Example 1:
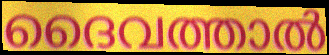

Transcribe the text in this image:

ദൈവത്താൽ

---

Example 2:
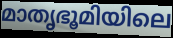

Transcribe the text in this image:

മാതൃഭൂമിയിലെ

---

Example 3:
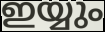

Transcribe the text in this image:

ഇയ്യും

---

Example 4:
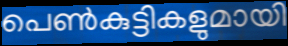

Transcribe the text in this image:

പെൺകുട്ടികളുമായി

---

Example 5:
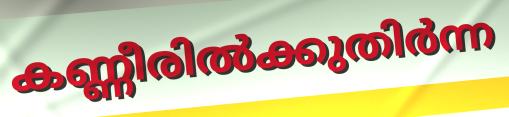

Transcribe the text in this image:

കണ്ണീരിൽക്കുതിർന്ന